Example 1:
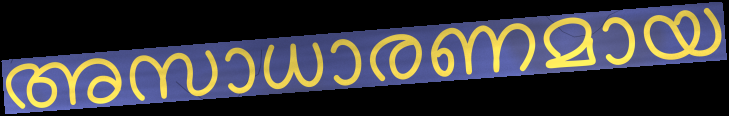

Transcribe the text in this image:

അസാധാരണമായ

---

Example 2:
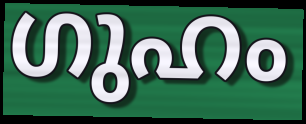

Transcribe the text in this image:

ഗുഹം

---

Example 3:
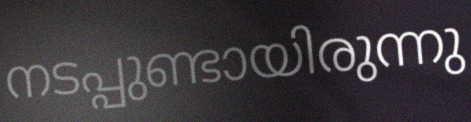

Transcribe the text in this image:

നടപ്പുണ്ടായിരുന്നു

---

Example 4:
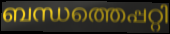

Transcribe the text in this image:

ബന്ധത്തെപ്പറ്റി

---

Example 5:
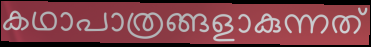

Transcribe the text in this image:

കഥാപാത്രങ്ങളാകുന്നത്